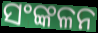
ସଂଙ୍କଳନ